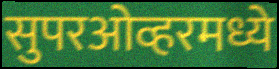
सुपरओव्हरमध्ये